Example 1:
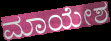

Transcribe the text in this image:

ಮಾಯೇಶ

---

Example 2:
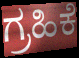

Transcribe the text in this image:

ಗ್ರಹಿಕೆ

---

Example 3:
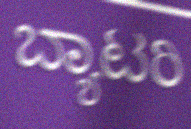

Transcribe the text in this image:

ಬ್ಯಾಟರಿ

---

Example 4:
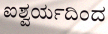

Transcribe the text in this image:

ಐಶ್ವರ್ಯದಿಂದ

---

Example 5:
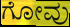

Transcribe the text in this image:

ಗೋವು